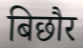
बिछौर